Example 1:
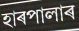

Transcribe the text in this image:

হাৰপালাৰ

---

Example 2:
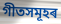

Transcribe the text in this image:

গীতসমূহৰ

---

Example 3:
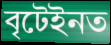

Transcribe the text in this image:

বৃটেইনত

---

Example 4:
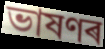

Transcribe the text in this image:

ভাষণৰ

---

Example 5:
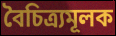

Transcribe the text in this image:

বৈচিত্ৰ্যমূলক